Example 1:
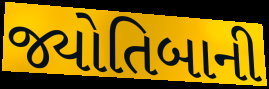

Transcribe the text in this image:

જ્યોતિબાની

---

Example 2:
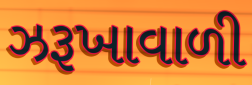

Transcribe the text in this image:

ઝરૂખાવાળી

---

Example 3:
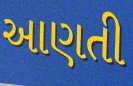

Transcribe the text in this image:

આણતી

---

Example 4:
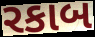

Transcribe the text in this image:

રકાબ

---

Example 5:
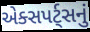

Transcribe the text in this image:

એક્સપર્ટ્સનું